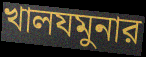
খালযমুনার